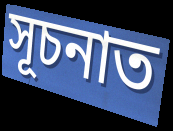
সূচনাত